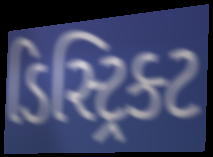
ડિસ્ટ્રિક્ટ